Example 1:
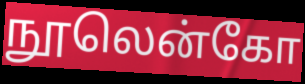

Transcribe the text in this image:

நூலென்கோ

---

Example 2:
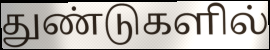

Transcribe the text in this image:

துண்டுகளில்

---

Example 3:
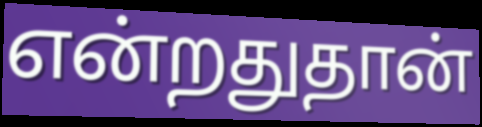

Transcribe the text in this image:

என்றதுதான்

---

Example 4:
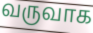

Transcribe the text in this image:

வருவாக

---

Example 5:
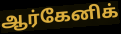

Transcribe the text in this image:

ஆர்கேனிக்